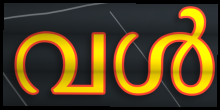
വൾ